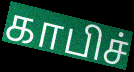
காபிச்